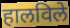
हालविले